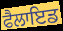
ਫੈਲਾਇਡ